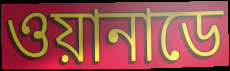
ওয়ানাডে